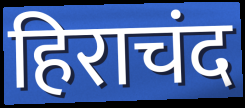
हिराचंद